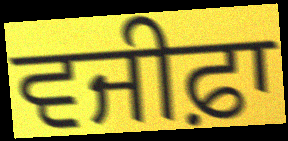
ਵਜੀਫ਼ਾ